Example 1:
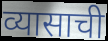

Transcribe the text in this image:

व्यासाची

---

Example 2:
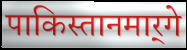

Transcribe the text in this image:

पाकिस्तानमार्गे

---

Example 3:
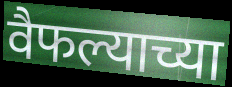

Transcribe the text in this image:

वैफल्याच्या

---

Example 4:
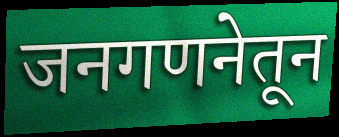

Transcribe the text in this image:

जनगणनेतून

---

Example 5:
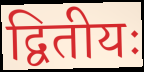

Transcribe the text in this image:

द्वितीयः